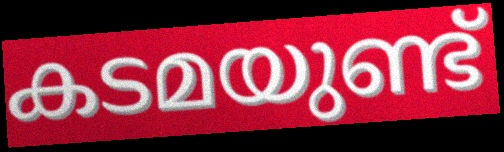
കടമയുണ്ട്